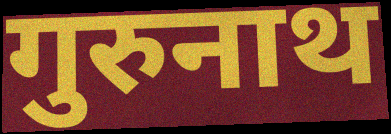
गुरुनाथ